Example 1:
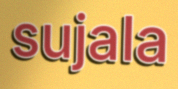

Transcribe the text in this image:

sujala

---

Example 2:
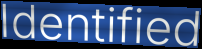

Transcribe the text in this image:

Identified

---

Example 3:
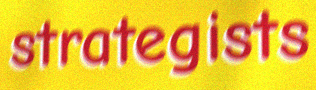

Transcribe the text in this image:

strategists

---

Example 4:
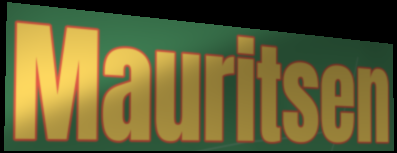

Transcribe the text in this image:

Mauritsen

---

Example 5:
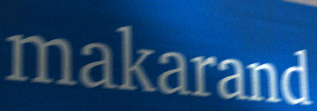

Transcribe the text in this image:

makarand